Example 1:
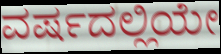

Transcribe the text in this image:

ವರ್ಷದಲ್ಲಿಯೇ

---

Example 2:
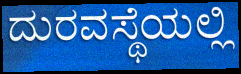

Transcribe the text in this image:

ದುರವಸ್ಥೆಯಲ್ಲಿ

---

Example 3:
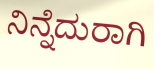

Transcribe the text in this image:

ನಿನ್ನೆದುರಾಗಿ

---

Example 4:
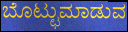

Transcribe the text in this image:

ಬೊಟ್ಟುಮಾಡುವ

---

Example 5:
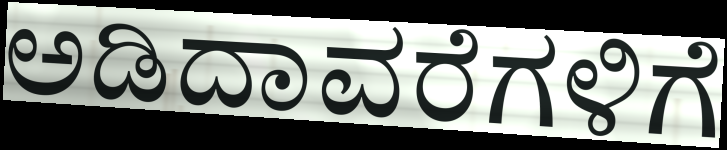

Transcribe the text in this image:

ಅಡಿದಾವರೆಗಳಿಗೆ